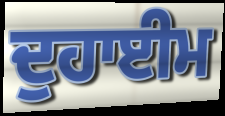
ਦੁਹਾਈਮ